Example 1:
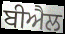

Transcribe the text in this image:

ਬੀਐਲ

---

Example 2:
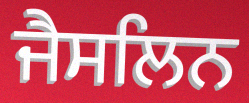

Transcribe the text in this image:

ਜੈਸਲਿਨ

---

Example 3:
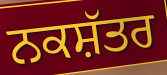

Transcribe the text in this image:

ਨਕਸ਼ੱਤਰ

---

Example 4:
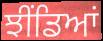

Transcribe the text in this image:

ਝੀਂਡਿਆਂ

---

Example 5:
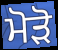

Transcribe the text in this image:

ਮੋੜੋ